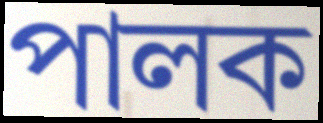
পালক